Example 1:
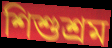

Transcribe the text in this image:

শিশুশ্রম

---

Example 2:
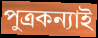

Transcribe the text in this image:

পুত্রকন্যাই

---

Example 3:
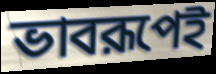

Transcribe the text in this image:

ভাবরূপেই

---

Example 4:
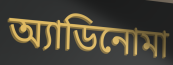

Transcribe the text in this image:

অ্যাডিনোমা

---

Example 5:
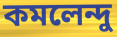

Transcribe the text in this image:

কমলেন্দু